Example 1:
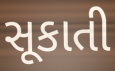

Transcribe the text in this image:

સૂકાતી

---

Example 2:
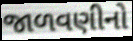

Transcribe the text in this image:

જાળવણીનો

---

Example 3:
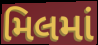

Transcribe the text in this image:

મિલમાં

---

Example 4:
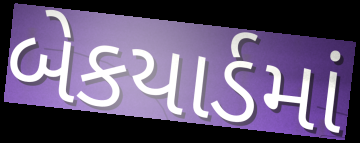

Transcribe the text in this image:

બેકયાર્ડમાં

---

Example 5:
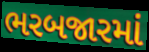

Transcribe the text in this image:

ભરબજારમાં